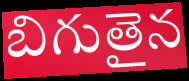
బిగుతైన